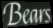
Bears